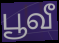
பூவீ